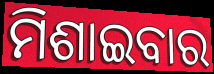
ମିଶାଇବାର